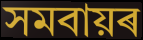
সমবায়ৰ